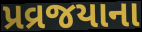
પ્રવ્રજયાના